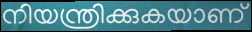
നിയന്ത്രിക്കുകയാണ്